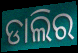
ଡାଲିର